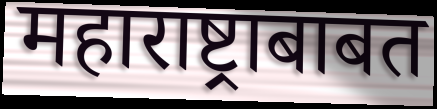
महाराष्ट्राबाबत